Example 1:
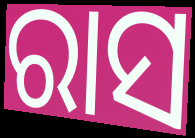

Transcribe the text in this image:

ରାସ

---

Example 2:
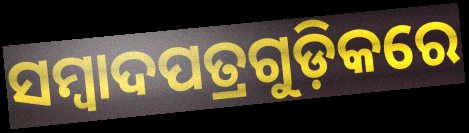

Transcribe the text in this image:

ସମ୍ୱାଦପତ୍ରଗୁଡ଼ିକରେ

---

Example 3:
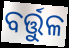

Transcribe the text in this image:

ବର୍ତ୍ତୁଳ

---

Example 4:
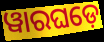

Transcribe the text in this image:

ୱାରଘଡ଼େ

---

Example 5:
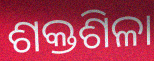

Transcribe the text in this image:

ଶକ୍ତଶିଳା